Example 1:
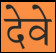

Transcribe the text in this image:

देवे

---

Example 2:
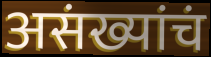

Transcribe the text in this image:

असंख्यांचं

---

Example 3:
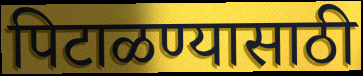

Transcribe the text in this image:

पिटाळण्यासाठी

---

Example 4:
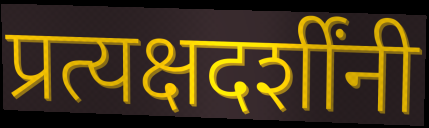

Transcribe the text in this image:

प्रत्यक्षदर्शींनी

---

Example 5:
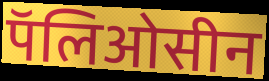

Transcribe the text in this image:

पॅलिओसीन